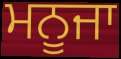
ਮਨੂਜਾ